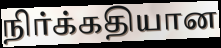
நிர்க்கதியான